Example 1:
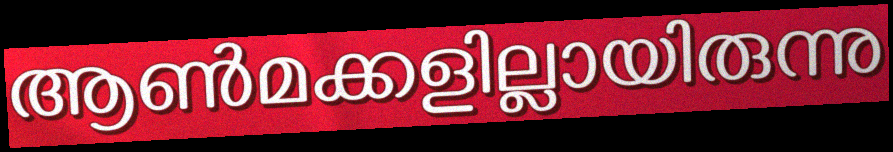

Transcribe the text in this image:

ആൺമക്കളില്ലായിരുന്നു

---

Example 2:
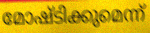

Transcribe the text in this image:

മോഷ്ടിക്കുമെന്ന്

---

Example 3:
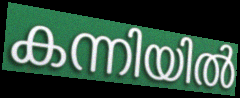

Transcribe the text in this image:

കന്നിയിൽ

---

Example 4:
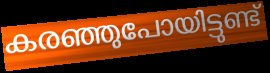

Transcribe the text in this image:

കരഞ്ഞുപോയിട്ടുണ്ട്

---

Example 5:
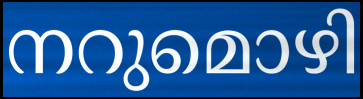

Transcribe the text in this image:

നറുമൊഴി